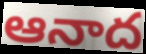
ఆనాద